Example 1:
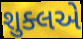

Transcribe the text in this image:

શુક્લએ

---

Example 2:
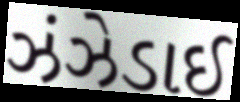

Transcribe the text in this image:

ઝંઝેડાઈ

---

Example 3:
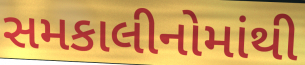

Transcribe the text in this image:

સમકાલીનોમાંથી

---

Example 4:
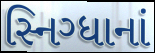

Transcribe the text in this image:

સ્નિગ્ધાનાં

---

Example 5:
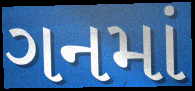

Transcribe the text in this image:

ગનમાં